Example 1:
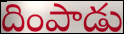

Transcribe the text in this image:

దింపాడు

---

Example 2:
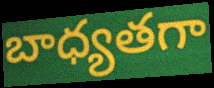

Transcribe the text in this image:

బాధ్యతగా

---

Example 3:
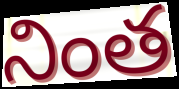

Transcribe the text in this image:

నింత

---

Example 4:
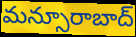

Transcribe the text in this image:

మన్సూరాబాద్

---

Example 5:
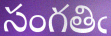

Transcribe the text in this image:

సంగతిఁ